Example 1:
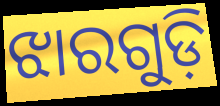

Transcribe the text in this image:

ଝାରଗୁଡ଼ି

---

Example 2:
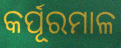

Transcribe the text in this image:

କର୍ପୂରମାଳ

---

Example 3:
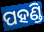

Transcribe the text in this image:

ପହଣ୍ଡି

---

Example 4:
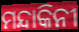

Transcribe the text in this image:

ମନ୍ଦାକିନୀ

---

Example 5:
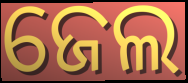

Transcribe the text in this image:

ଜେଲ